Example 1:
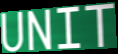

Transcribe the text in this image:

UNIT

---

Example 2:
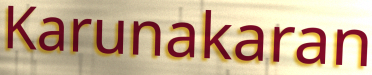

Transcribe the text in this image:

Karunakaran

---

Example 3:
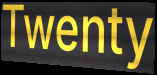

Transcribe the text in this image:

Twenty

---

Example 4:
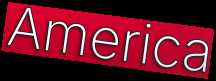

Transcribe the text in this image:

America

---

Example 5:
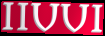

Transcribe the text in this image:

IIUUI